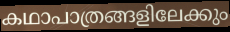
കഥാപാത്രങ്ങളിലേക്കും